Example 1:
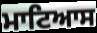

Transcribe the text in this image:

ਮਾਟਿਆਸ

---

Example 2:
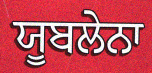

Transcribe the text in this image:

ਯੂਬਲੇਨਾ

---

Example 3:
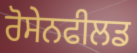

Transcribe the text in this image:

ਰੋਸੇਨਫੀਲਡ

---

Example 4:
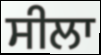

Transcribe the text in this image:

ਸੀਲਾ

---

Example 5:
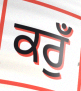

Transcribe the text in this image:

ਕਰੁਁ